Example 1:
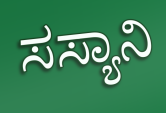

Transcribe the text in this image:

ಸಸ್ಯಾನಿ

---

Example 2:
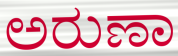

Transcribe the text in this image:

ಅರುಣಾ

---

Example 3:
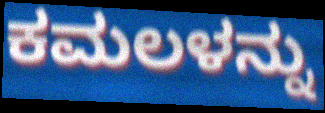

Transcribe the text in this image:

ಕಮಲಳನ್ನು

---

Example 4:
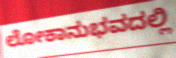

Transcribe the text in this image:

ಲೋಕಾನುಭವದಲ್ಲಿ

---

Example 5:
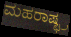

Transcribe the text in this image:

ಮಹರಾಷ್ಟ್ರ